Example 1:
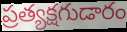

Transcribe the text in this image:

ప్రత్యక్షగుడారం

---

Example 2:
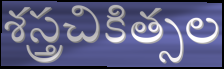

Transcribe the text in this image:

శస్త్రచికిత్సల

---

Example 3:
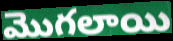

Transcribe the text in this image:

మొగలాయి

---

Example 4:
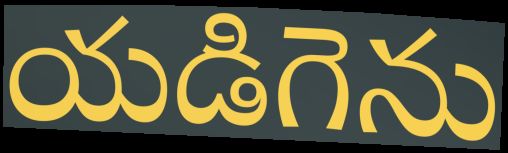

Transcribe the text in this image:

యడిగెను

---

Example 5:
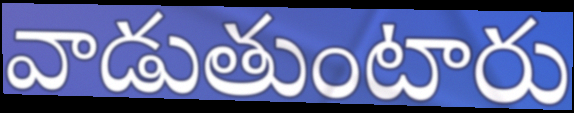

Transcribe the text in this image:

వాడుతుంటారు